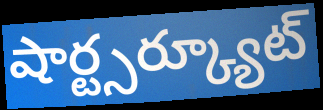
షార్ట్సర్క్యూట్